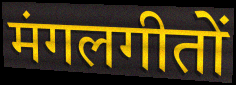
मंगलगीतों